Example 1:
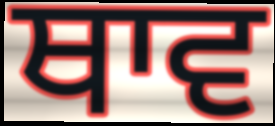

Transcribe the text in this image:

ਥਾਵ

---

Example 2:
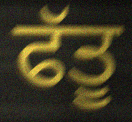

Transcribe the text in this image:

ਫੱਤੂ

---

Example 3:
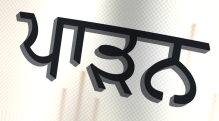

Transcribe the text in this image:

ਪਾੜਨ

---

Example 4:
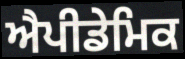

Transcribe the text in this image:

ਐਪੀਡੇਮਿਕ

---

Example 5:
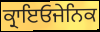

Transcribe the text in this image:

ਕ੍ਰਾਇਓਜੇਨਿਕ